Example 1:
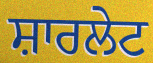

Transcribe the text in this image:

ਸ਼ਾਰਲੇਟ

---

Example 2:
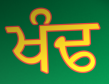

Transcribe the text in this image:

ਖੰਢ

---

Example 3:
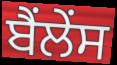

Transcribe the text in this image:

ਬੈਂਲੇਂਸ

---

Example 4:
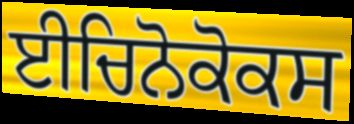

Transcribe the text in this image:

ਈਚਿਨੋਕੋਕਸ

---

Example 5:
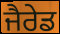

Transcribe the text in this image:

ਜੈਰੇਡ